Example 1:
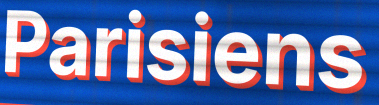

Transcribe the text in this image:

Parisiens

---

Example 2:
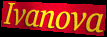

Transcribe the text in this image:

Ivanova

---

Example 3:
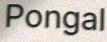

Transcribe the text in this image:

Pongal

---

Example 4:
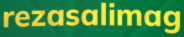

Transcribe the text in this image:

rezasalimag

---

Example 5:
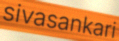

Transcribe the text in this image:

sivasankari